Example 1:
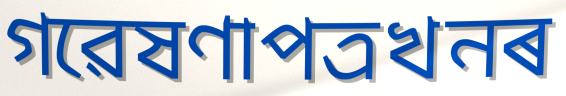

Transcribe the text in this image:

গৱেষণাপত্ৰখনৰ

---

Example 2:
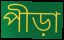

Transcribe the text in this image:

পীড়া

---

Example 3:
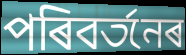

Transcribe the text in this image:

পৰিবৰ্তনেৰ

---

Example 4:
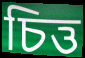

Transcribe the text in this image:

চিত্ত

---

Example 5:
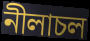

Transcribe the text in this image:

নীলাচল